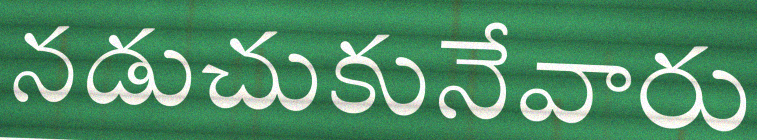
నడుచుకునేవారు